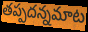
తప్పదన్నమాట